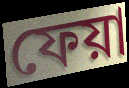
ফেয়া